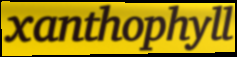
xanthophyll